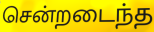
சென்றடைந்த